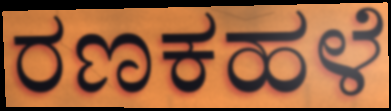
ರಣಕಹಳೆ